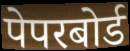
पेपरबोर्ड